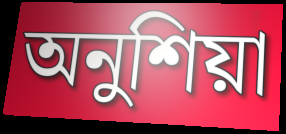
অনুশিয়া